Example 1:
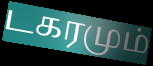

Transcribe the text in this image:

டகரமும்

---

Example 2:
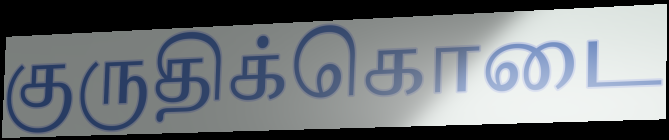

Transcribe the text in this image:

குருதிக்கொடை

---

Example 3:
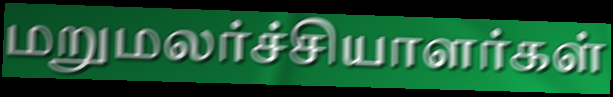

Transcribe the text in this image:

மறுமலர்ச்சியாளர்கள்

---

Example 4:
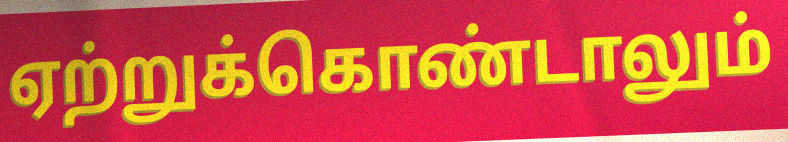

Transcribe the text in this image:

ஏற்றுக்கொண்டாலும்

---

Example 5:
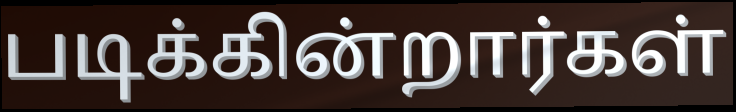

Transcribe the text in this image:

படிக்கின்றார்கள்